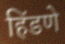
हिंडणे